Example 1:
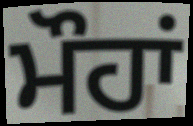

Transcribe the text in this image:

ਮੌਹਾਂ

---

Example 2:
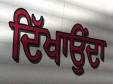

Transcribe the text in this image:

ਦਿੱਖਾਉਂਦਾ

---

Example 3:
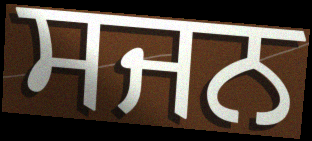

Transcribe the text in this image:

ਸਜਨ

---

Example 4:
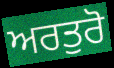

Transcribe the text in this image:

ਅਰਤੁਰੋ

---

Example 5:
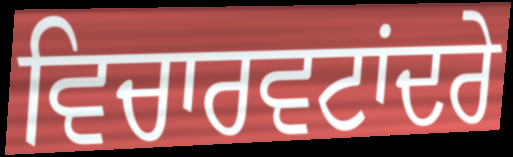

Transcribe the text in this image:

ਵਿਚਾਰਵਟਾਂਦਰੇ